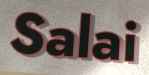
Salai